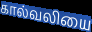
கால்வலியை